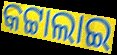
କଟ୍ଟାଲାଇ